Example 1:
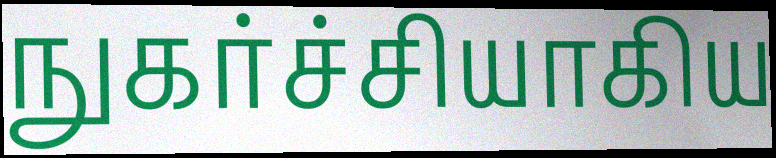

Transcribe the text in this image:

நுகர்ச்சியாகிய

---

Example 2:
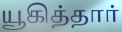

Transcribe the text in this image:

யூகித்தார்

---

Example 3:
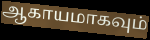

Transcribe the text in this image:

ஆகாயமாகவும்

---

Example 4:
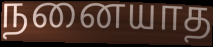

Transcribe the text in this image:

நனையாத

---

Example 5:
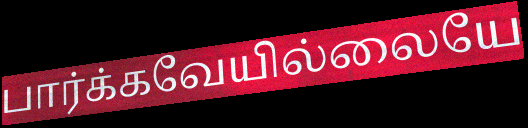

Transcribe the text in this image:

பார்க்கவேயில்லையே